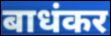
बाधंकर